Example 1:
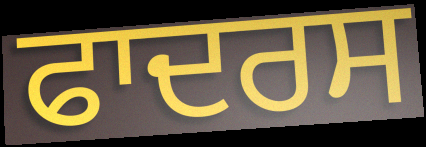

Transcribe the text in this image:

ਫਾਦਰਸ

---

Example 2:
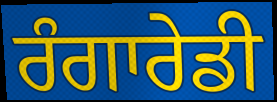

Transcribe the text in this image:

ਰੰਗਾਰੇਡੀ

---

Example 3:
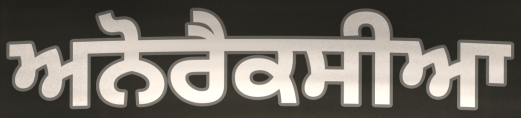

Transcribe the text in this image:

ਅਨੋਰੈਕਸੀਆ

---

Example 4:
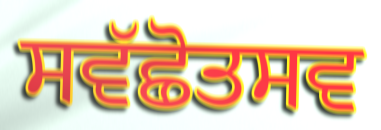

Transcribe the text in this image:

ਸਵੱਛੋਤਸਵ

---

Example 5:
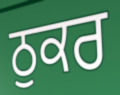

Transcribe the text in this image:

ਠੁਕਰ